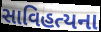
સાવિહત્યના